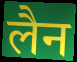
लैन